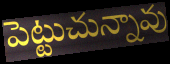
పెట్టుచున్నావు